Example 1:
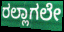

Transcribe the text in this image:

ರಲ್ಲಾಗಲೇ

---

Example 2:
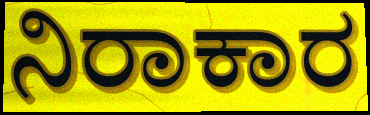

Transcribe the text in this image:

ನಿರಾಕಾರ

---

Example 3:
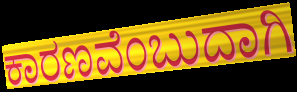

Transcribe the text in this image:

ಕಾರಣವೆಂಬುದಾಗಿ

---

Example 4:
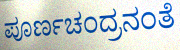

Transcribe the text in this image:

ಪೂರ್ಣಚಂದ್ರನಂತೆ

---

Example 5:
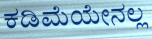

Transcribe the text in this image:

ಕಡಿಮೆಯೇನಲ್ಲ